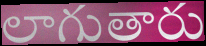
లాగుతారు